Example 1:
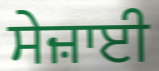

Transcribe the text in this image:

ਸੇਜ਼ਾਈ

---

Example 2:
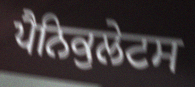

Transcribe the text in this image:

ਪੈਨਿਕੁਲੇਟਸ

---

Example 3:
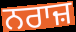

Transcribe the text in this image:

ਨਰਾਜ਼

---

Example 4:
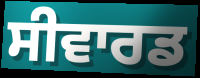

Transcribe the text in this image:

ਸੀਵਾਰਡ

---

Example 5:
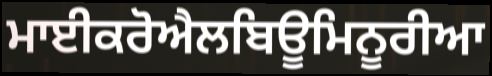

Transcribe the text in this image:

ਮਾਈਕਰੋਐਲਬਿਊਮਿਨੂਰੀਆ